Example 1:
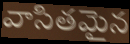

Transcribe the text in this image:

వాసితమైన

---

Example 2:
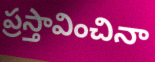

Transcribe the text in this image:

ప్రస్తావించినా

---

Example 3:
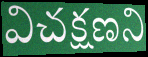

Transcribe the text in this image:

విచక్షణని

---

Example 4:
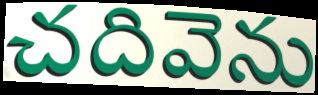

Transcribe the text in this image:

చదివెను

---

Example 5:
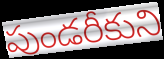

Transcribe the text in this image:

పుండరీకుని